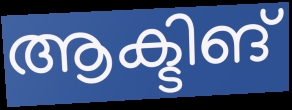
ആക്ടിങ്